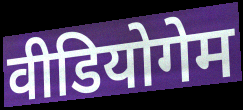
वीडियोगेम